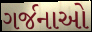
ગર્જનાઓ